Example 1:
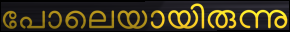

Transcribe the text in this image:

പോലെയായിരുന്നു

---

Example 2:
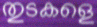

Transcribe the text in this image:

തുടകളെ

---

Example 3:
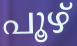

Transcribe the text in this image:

പൂഴ്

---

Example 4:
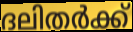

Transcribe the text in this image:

ദലിതർക്ക്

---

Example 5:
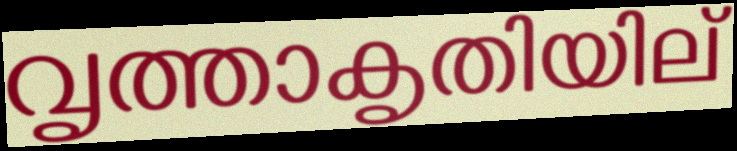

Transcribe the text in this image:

വൃത്താകൃതിയില്